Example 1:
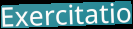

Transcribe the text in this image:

Exercitatio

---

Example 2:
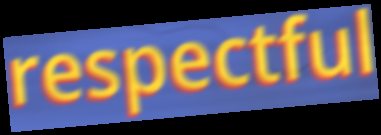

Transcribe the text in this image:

respectful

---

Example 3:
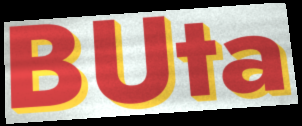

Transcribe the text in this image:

BUta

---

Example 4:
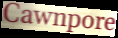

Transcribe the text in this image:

Cawnpore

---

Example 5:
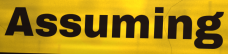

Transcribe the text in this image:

Assuming